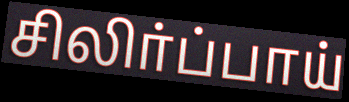
சிலிர்ப்பாய்